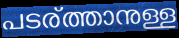
പടര്ത്താനുള്ള